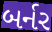
બર્નર